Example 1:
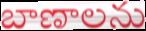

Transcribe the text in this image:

బాణాలను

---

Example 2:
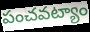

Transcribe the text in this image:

పంచవట్యాం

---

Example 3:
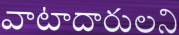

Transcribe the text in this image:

వాటాదారులని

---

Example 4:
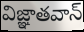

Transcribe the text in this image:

విజ్ఞాతవాన్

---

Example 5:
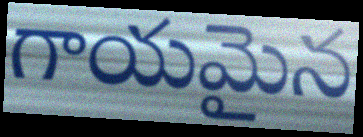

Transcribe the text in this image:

గాయమైన